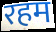
रहम